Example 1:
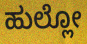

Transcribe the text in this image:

ಹುಲ್ಲೋ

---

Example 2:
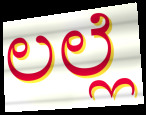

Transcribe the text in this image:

ಲಲ್ಲೆ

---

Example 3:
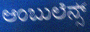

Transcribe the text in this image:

ಆಂಬುಲೆನ್ಸ್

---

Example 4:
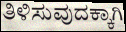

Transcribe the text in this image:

ತಿಳಿಸುವುದಕ್ಕಾಗಿ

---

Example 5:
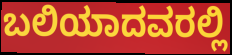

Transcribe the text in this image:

ಬಲಿಯಾದವರಲ್ಲಿ